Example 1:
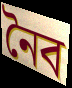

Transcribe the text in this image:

নৈব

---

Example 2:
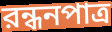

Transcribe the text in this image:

রন্ধনপাত্র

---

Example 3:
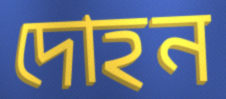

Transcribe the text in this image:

দোহন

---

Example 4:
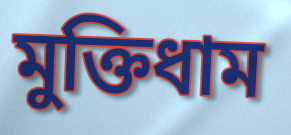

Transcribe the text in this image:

মুক্তিধাম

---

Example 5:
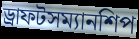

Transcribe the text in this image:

ড্রাফটসম্যানশিপ